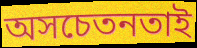
অসচেতনতাই